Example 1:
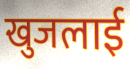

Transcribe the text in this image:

खुजलाई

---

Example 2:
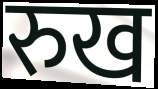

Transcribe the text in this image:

रुख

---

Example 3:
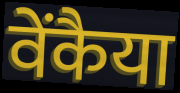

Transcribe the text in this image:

वेंकैया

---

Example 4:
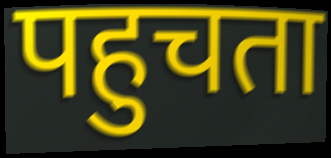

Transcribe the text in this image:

पहुचता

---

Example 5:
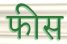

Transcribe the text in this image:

फीस